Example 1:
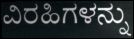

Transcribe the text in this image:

ವಿರಹಿಗಳನ್ನು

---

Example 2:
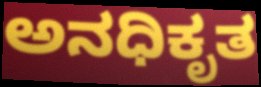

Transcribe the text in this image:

ಅನಧಿಕೃತ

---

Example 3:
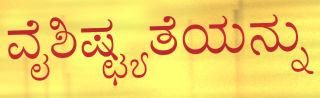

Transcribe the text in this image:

ವೈಶಿಷ್ಟ್ಯತೆಯನ್ನು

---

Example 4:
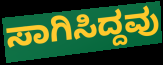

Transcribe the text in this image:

ಸಾಗಿಸಿದ್ದವು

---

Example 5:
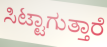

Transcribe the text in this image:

ಸಿಟ್ಟಾಗುತ್ತಾರೆ